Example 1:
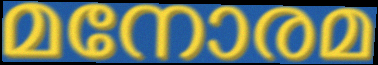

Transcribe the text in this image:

മനോരമ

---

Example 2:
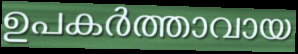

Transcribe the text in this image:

ഉപകർത്താവായ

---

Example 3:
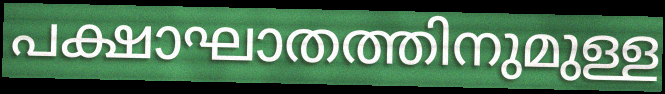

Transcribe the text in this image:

പക്ഷാഘാതത്തിനുമുള്ള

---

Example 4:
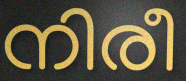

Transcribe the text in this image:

നിരീ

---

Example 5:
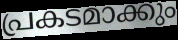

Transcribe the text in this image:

പ്രകടമാക്കും